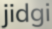
jidgi